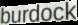
burdock